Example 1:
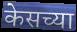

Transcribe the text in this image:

केसच्या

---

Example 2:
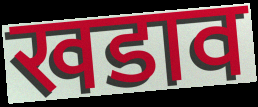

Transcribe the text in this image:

खडाव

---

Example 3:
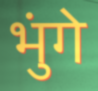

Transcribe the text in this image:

भुंगे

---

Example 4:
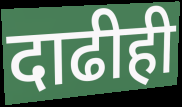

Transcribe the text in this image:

दाढीही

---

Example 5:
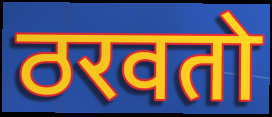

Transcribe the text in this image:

ठरवतो